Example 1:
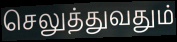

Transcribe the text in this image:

செலுத்துவதும்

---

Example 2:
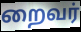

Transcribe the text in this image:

றைவர்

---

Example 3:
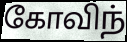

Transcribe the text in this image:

கோவிந்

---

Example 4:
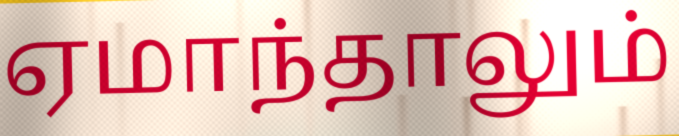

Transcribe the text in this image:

ஏமாந்தாலும்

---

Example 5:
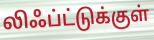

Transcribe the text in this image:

லிஃப்ட்டுக்குள்